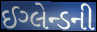
ઈગ્લેન્ડની